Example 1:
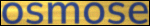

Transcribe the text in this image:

osmose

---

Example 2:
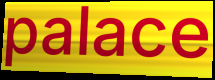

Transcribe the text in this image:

palace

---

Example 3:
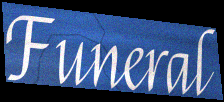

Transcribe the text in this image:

Funeral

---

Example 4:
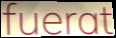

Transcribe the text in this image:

fuerat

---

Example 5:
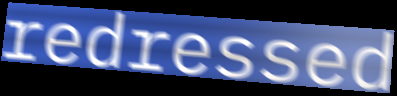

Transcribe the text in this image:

redressed